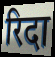
रिदा